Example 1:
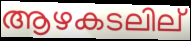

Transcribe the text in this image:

ആഴകടലില്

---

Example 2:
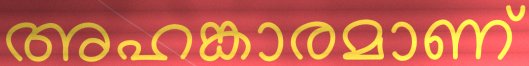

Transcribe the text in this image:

അഹങ്കാരമാണ്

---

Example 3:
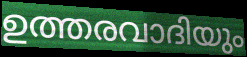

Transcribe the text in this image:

ഉത്തരവാദിയും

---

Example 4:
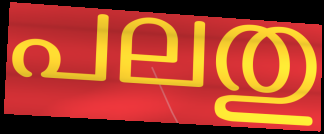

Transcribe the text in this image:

പലതു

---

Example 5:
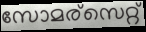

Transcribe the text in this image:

സോമര്സെറ്റ്